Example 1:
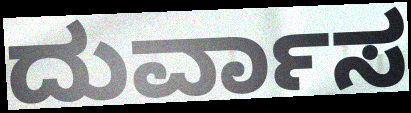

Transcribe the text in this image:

ದುರ್ವಾಸ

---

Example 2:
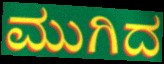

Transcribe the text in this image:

ಮುಗಿದ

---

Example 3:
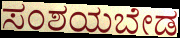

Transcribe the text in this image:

ಸಂಶಯಬೇಡ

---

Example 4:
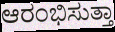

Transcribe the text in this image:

ಆರಂಭಿಸುತ್ತಾ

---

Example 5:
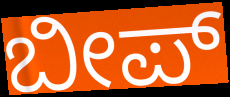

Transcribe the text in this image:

ಬೀಪ್